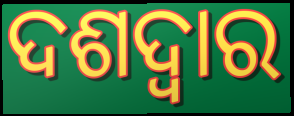
ଦଶଦ୍ୱାର